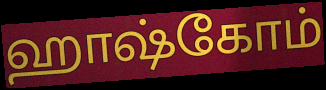
ஹாஷ்கோம்